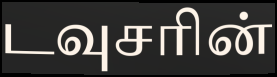
டவுசரின்